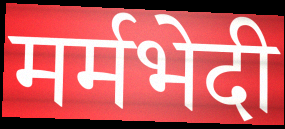
मर्मभेदी